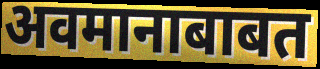
अवमानाबाबत